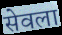
सेवला